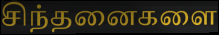
சிந்தனைகளை